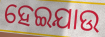
ହେଇଯାଉ